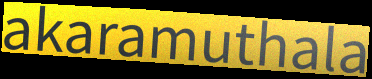
akaramuthala